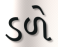
ડળે